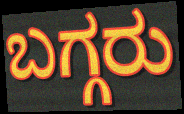
ಬಗ್ಗರು